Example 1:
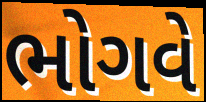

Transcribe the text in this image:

ભોગવે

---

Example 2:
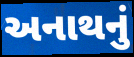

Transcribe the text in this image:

અનાથનું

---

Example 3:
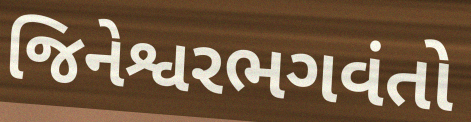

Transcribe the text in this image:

જિનેશ્વરભગવંતો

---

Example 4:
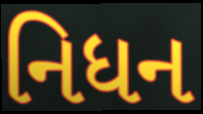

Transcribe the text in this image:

નિધન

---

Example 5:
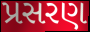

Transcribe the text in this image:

પ્રસરણ